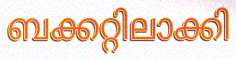
ബക്കറ്റിലാക്കി